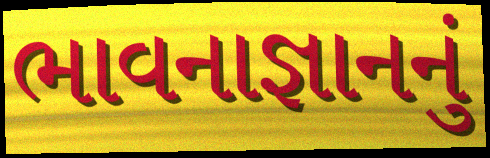
ભાવનાજ્ઞાનનું